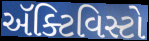
ઍક્ટિવિસ્ટો